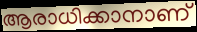
ആരാധിക്കാനാണ്